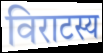
विराटस्य